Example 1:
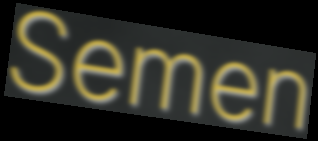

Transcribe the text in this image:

Semen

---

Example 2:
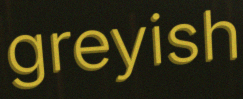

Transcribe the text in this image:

greyish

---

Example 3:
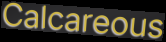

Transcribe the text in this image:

Calcareous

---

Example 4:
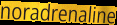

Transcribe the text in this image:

noradrenaline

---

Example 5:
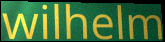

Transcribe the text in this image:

wilhelm